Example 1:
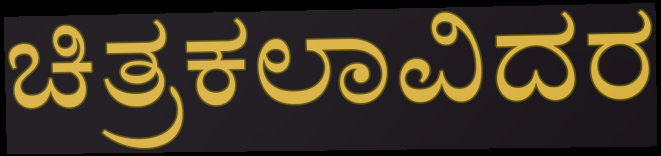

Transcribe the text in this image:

ಚಿತ್ರಕಲಾವಿದರ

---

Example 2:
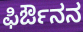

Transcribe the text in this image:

ಫಿರ್ಔನನ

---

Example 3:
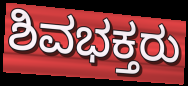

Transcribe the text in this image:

ಶಿವಭಕ್ತರು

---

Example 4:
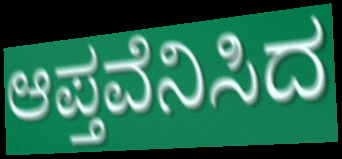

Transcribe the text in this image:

ಆಪ್ತವೆನಿಸಿದ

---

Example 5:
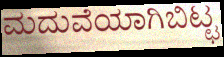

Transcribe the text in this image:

ಮದುವೆಯಾಗಿಬಿಟ್ಟ